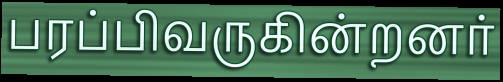
பரப்பிவருகின்றனர்